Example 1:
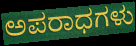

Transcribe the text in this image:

ಅಪರಾಧಗಳು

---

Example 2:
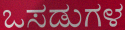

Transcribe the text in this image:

ಒಸಡುಗಳ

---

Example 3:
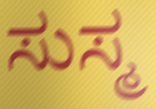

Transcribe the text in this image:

ಸುಸ್ಮ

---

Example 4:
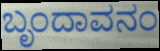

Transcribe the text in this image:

ಬೃಂದಾವನಂ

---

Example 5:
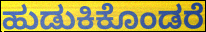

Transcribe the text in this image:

ಹುಡುಕಿಕೊಂಡರೆ